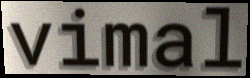
vimal